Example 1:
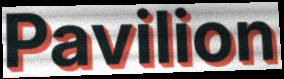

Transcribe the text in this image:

Pavilion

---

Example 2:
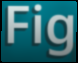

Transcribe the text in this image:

Fig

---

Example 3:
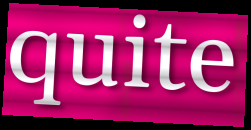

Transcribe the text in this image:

quite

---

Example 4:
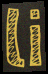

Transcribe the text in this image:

li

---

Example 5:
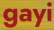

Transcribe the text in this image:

gayi